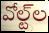
వోల్ట్‌ల